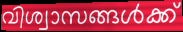
വിശ്വാസങ്ങൾക്ക്